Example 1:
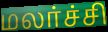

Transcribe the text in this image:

மலர்ச்சி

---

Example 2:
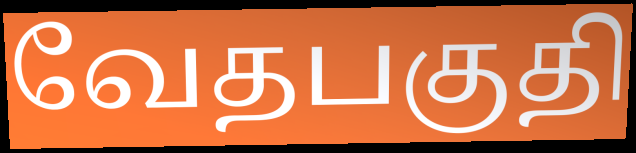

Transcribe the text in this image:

வேதபகுதி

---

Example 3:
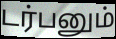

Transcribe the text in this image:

டர்பனும்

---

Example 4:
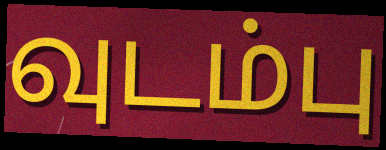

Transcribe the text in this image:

வுடம்பு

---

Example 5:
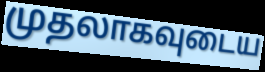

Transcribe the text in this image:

முதலாகவுடைய